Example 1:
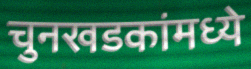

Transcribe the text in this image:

चुनखडकांमध्ये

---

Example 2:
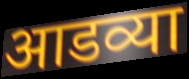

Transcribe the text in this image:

आडव्या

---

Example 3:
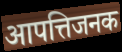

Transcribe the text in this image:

आपत्तिजनक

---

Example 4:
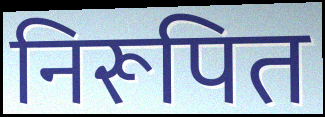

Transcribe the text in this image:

निरूपित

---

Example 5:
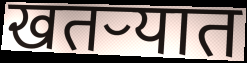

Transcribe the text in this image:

खतऱ्यात